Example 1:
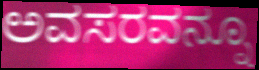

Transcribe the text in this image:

ಅವಸರವನ್ನೂ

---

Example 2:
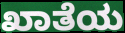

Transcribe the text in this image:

ಖಾತೆಯ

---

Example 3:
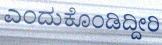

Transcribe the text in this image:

ಎಂದುಕೊಂಡಿದ್ದೀರಿ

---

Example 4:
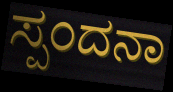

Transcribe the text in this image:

ಸ್ಪಂದನಾ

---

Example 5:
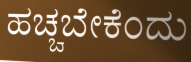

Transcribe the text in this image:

ಹಚ್ಚಬೇಕೆಂದು